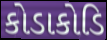
કોડાકોડિ